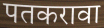
पतकरावा